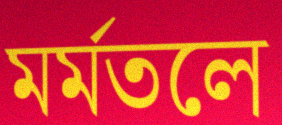
মর্মতলে